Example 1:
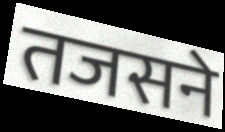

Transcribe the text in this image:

तजसने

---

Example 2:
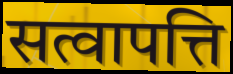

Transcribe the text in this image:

सत्वापत्ति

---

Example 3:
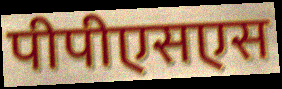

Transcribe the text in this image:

पीपीएसएस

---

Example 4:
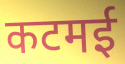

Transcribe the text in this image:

कटमई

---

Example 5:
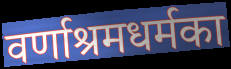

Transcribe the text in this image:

वर्णाश्रमधर्मका